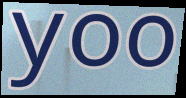
yoo